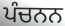
ਪੰਚਨਨ